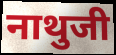
नाथुजी